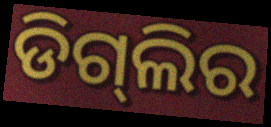
ଡିଗ୍‌ଲିର